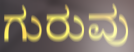
ಗುರುವು